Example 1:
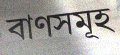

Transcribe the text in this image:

বাণসমূহ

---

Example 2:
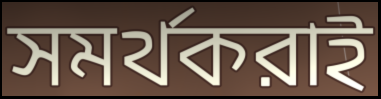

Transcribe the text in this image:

সমর্থকরাই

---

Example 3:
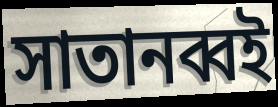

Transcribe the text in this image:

সাতানব্বই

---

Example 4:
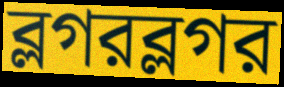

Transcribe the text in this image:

ব্লগরব্লগর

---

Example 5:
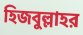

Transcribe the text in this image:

হিজবুল্লাহর